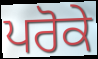
ਪਰੋਕੇ